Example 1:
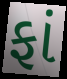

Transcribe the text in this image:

ફાં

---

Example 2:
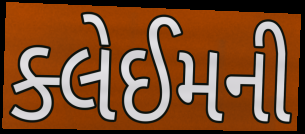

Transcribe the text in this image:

ક્લેઈમની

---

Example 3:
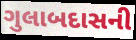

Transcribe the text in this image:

ગુલાબદાસની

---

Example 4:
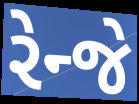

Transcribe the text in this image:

રેન્જે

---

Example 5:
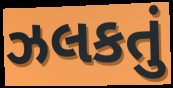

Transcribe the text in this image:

ઝલકતું